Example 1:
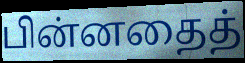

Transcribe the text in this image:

பின்னதைத்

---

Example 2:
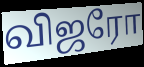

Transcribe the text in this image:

விஜரோ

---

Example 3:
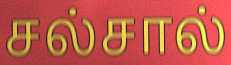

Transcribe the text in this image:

சல்சால்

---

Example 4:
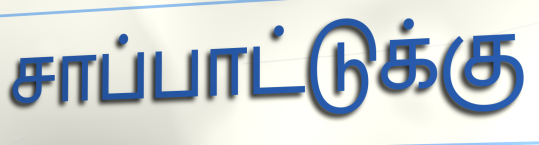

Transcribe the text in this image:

சாப்பாட்டுக்கு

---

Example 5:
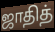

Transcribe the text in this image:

ஜாதித்